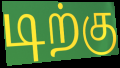
டிற்கு